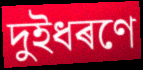
দুইধৰণে